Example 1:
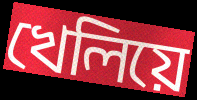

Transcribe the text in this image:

খেলিয়ে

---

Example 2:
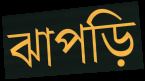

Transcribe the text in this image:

ঝাপড়ি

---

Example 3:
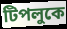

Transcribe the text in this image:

টিপলুকে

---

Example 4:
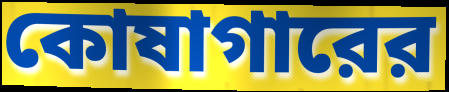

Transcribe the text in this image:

কোষাগারের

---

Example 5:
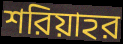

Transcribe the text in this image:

শরিয়াহর